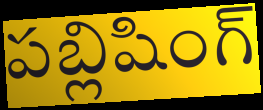
పబ్లిషింగ్